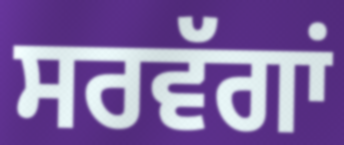
ਸਰਵੱਗਾਂ